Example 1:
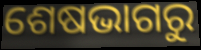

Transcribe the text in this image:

ଶେଷଭାଗରୁ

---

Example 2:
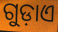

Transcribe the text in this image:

ଗୁଡ଼ାଏ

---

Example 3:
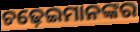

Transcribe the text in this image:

ଚଢ଼େଇମାନଙ୍କର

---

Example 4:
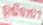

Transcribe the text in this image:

ରୂଢିବାଦୀ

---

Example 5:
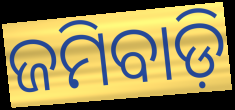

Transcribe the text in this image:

ଜମିବାଡ଼ି